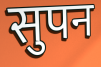
सुपन